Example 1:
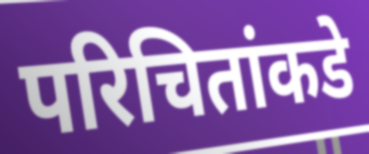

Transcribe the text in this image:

परिचितांकडे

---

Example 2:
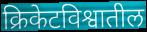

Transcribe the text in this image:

क्रिकेटविश्वातील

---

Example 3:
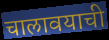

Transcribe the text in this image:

चालावयाची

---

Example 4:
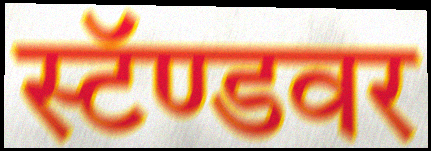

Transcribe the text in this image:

स्टॅण्डवर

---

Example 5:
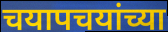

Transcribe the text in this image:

चयापचयांच्या